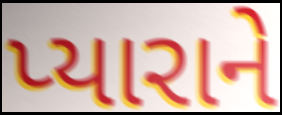
પ્યારાને